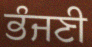
ਭੰਜਣੀ